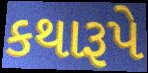
કથારૂપે